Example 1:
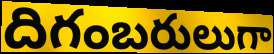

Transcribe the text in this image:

దిగంబరులుగా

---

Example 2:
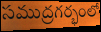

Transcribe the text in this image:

సముద్రగర్భంలో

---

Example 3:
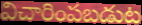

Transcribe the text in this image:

విచారింపబడుట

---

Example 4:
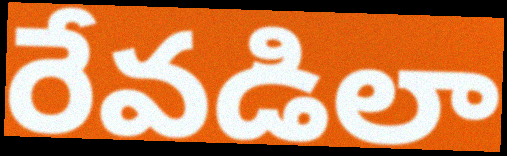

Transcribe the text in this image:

రేవడిలా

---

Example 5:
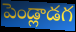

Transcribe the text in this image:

పెండ్లాడగ